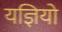
यज्ञियो